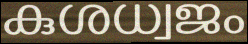
കുശധ്വജം